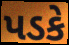
પડકે